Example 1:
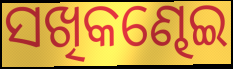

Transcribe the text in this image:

ସଖିକଣ୍ଢେଇ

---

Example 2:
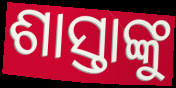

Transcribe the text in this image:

ଶାସ୍ତାଙ୍କୁ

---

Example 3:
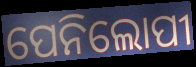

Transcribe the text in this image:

ପେନିଲୋପୀ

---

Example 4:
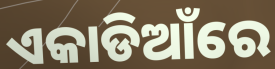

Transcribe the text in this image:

ଏକାଡିଆଁରେ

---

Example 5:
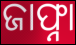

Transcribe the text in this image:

ଜାଫ୍ନା